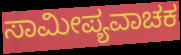
ಸಾಮೀಪ್ಯವಾಚಕ